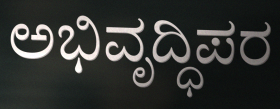
ಅಭಿವೃದ್ಧಿಪರ